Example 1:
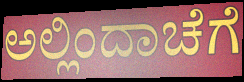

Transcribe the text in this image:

ಅಲ್ಲಿಂದಾಚೆಗೆ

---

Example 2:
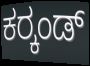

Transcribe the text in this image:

ಕರ್‍ಕಂಡ್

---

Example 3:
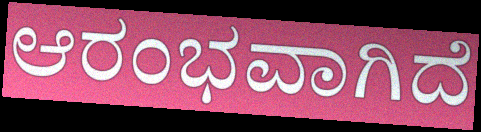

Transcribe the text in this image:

ಆರಂಭವಾಗಿದೆ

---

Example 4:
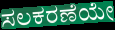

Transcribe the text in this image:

ಸಲಕರಣೆಯೇ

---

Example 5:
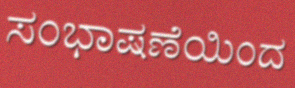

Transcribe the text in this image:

ಸಂಭಾಷಣೆಯಿಂದ